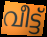
വീട്ട്